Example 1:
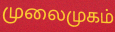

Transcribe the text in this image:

முலைமுகம்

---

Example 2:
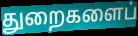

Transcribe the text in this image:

துறைகளைப்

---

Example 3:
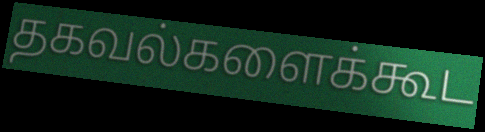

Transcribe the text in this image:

தகவல்களைக்கூட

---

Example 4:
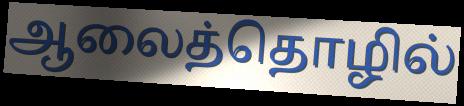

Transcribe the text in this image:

ஆலைத்தொழில்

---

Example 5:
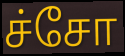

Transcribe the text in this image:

ச்சோ